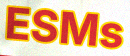
ESMs